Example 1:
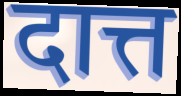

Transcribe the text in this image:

दात्त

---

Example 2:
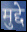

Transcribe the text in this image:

मुद्दे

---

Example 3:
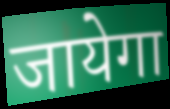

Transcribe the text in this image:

जायेगा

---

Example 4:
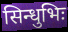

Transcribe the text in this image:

सिन्धुभिः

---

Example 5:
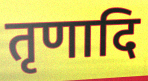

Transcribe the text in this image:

तृणादि